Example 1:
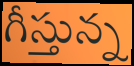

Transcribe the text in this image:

గీస్తున్న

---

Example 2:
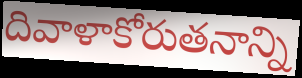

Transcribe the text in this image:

దివాళాకోరుతనాన్ని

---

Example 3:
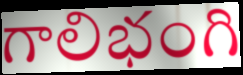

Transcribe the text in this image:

గాలిభంగి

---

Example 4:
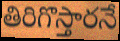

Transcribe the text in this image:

తిరిగొస్తారనే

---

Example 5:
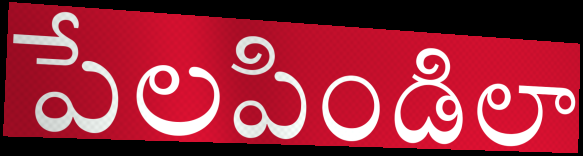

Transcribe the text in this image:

పేలపిండిలా